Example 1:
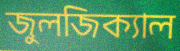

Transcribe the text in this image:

জুলজিক্যাল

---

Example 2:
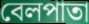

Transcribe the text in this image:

বেলপাতা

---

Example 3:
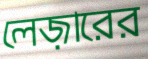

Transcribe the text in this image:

লেজ়ারের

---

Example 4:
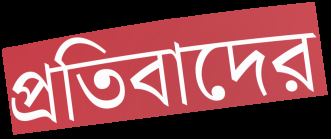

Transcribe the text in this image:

প্রতিবাদের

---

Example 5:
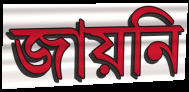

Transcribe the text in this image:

জায়নি